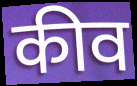
कीव